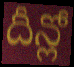
దీన్లో